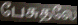
பேசுதலே